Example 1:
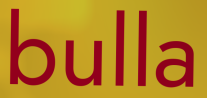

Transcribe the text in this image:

bulla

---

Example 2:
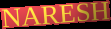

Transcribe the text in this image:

NARESH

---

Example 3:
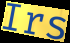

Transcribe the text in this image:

Irs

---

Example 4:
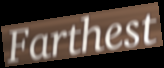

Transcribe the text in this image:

Farthest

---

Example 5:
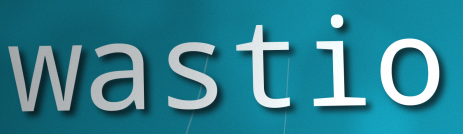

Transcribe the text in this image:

wastio